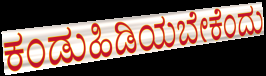
ಕಂಡುಹಿಡಿಯಬೇಕೆಂದು